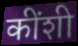
कींशी